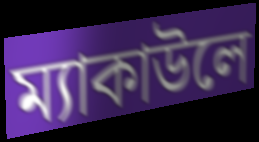
ম্যাকাউলে